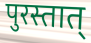
पुरस्तात्